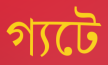
গ্যটে